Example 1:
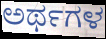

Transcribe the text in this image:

ಅರ್ಥಗಳ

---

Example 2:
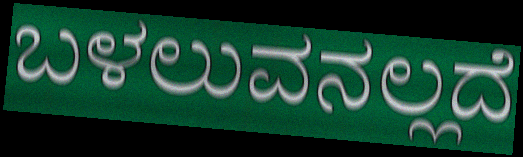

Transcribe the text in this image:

ಬಳಲುವನಲ್ಲದೆ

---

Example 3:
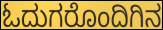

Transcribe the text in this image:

ಓದುಗರೊಂದಿಗಿನ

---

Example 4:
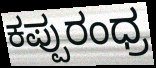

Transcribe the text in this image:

ಕಪ್ಪುರಂಧ್ರ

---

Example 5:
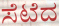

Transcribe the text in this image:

ಸೆಟೆದ